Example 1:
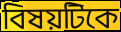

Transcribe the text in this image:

বিষয়টিকে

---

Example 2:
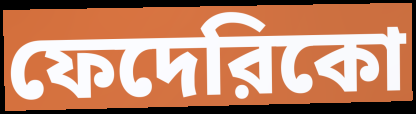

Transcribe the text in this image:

ফেদেরিকো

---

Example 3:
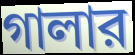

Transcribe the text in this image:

গালার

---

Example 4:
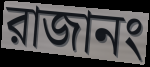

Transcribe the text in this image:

রাজানং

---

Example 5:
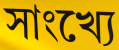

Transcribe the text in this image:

সাংখ্যে